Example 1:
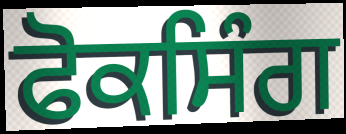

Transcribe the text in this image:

ਫੋਕਸਿੰਗ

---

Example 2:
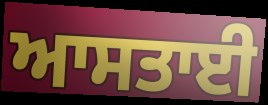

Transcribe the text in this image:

ਆਸਤਾਈ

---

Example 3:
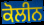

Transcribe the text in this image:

ਕੋਲੀਨ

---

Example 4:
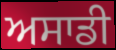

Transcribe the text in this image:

ਅਸਾਡੀ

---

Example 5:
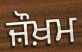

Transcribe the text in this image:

ਜ਼ੌਖ਼ਮ